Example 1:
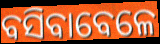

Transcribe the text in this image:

ବସିବାବେଳେ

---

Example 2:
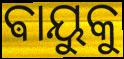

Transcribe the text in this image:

ଵାୟୁକୁ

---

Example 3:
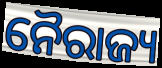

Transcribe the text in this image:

ନୈରାଜ୍ୟ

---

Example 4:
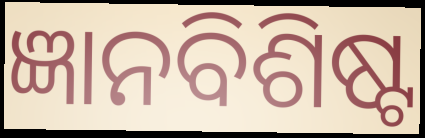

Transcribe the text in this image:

ଜ୍ଞାନବିଶିଷ୍ଟ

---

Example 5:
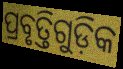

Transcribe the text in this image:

ପ୍ରବୃତ୍ତିଗୁଡ଼ିକ